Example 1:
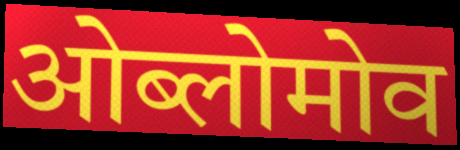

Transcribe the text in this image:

ओब्लोमोव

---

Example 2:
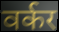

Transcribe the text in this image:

वर्कर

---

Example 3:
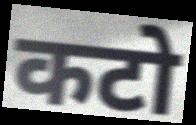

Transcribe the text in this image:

कटो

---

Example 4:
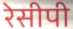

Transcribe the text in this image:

रेसीपी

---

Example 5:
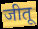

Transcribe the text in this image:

जीतू